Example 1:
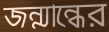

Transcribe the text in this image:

জন্মান্ধের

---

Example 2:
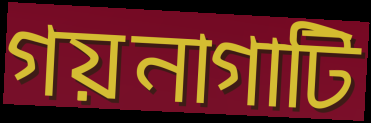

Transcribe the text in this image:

গয়নাগাটি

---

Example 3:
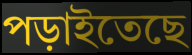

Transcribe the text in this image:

পড়াইতেছে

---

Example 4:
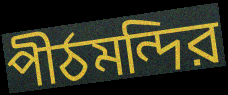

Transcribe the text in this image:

পীঠমন্দির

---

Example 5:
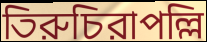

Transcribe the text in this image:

তিরুচিরাপল্লি